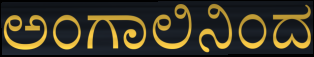
ಅಂಗಾಲಿನಿಂದ